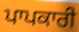
ਪਾਪਕਾਰੀ